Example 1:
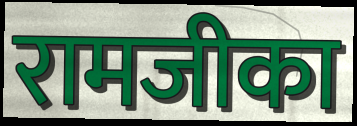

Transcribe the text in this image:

रामजीका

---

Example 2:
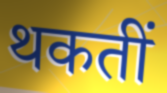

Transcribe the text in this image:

थकतीं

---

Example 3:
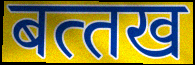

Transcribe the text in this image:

बत्‍तख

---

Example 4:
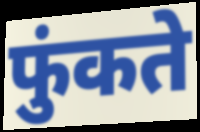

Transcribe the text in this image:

फुंकते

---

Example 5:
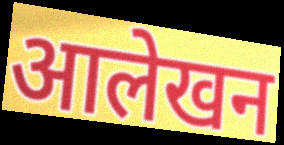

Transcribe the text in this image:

आलेखन